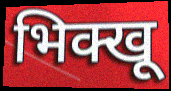
भिक्खू